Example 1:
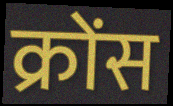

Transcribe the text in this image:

क्रोंस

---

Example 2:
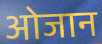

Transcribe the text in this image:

ओजान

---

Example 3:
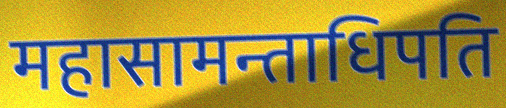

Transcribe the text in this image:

महासामन्ताधिपति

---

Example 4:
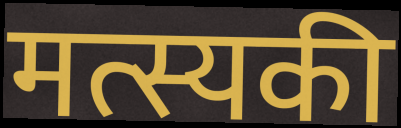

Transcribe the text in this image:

मत्स्यकी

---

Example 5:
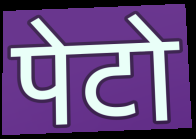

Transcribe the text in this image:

पेटो